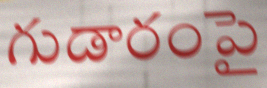
గుడారంపై